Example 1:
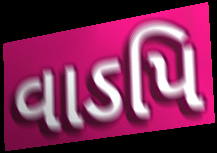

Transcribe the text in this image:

વાઽપિ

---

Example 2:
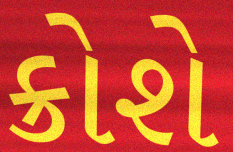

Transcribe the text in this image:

ક્રોશે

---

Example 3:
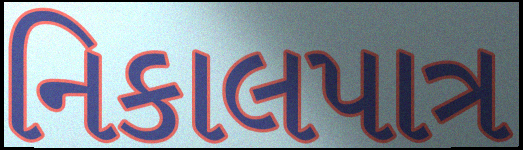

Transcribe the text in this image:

નિકાલપાત્ર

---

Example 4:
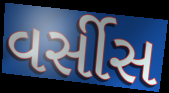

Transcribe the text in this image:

વર્સીસ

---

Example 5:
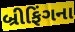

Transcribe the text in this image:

બ્રીફિંગના